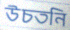
উচতনি